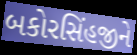
બકોરસિંહજીને